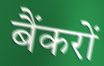
बैंकरों